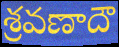
శ్రవణాదౌ